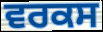
ਵਰਕਸ